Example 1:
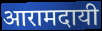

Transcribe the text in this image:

आरामदायी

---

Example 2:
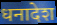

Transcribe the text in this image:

धनादेश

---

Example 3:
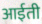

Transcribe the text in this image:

आईती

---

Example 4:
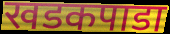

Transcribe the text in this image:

खडकपाडा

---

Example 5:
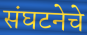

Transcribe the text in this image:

संघटनेचे